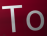
To